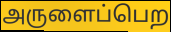
அருளைப்பெற